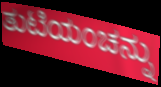
ತುಟಿಯಂಚನ್ನು